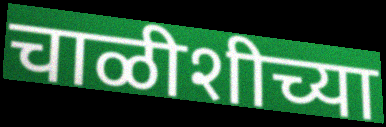
चाळीशीच्या